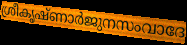
ശ്രീകൃഷ്ണാർജുനസംവാദേ